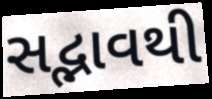
સદ્ભાવથી